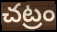
చట్రం